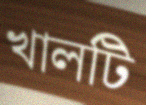
খালটি